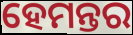
ହେମନ୍ତର